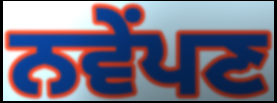
ਨਵੇਂਪਣ